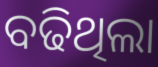
ବଢିଥିଲା